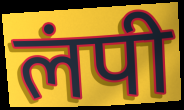
लंपी